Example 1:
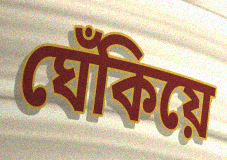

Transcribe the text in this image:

ঘেঁকিয়ে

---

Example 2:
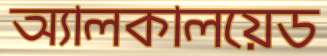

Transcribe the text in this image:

অ্যালকালয়েড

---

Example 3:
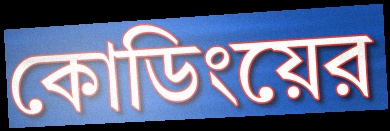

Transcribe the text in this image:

কোডিংয়ের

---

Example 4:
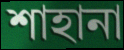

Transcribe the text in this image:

শাহানা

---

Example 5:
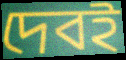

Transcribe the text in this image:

দেবই